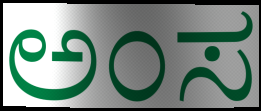
ಅಂಸ